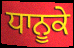
ਧਾਨੂਕੇ